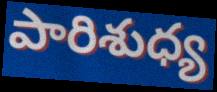
పారిశుధ్య